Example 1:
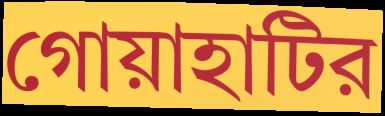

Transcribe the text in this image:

গোয়াহাটির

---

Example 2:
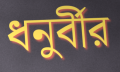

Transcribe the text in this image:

ধনুর্বীর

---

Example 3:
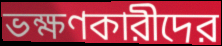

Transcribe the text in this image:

ভক্ষণকারীদের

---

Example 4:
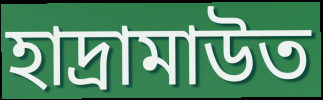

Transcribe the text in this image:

হাদ্রামাউত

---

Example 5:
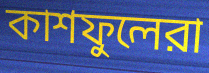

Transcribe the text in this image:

কাশফুলেরা